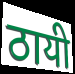
ठायी